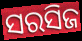
ସରସିଜ